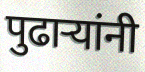
पुढाऱ्यांनी